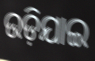
ଉଡ଼ିଯାଇ